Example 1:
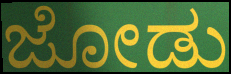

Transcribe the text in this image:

ಜೋಡು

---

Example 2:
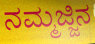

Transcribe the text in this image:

ನಮ್ಮಜ್ಜಿನ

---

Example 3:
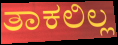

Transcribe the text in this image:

ತಾಕಲಿಲ್ಲ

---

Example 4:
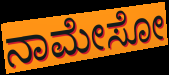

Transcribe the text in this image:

ನಾಮೇಸೋ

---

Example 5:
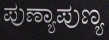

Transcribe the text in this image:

ಪುಣ್ಯಾಪುಣ್ಯ